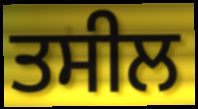
ਤਸੀਲ